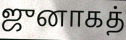
ஜுனாகத்